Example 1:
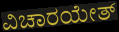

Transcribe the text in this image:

ವಿಚಾರಯೇತ್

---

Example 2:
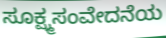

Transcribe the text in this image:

ಸೂಕ್ಷ್ಮಸಂವೇದನೆಯ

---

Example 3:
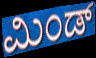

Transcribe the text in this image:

ಮಿಂಡ್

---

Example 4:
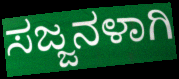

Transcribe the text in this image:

ಸಜ್ಜನಳಾಗಿ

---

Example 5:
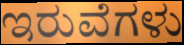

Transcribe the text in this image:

ಇರುವೆಗಳು